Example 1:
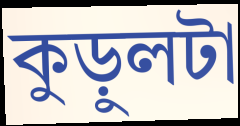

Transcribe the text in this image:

কুড়ুলটা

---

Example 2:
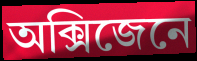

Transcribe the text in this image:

অক্সিজেনে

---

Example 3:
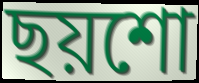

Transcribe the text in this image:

ছয়শো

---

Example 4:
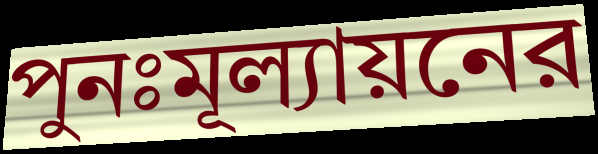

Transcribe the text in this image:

পুনঃমূল্যায়নের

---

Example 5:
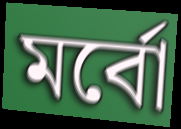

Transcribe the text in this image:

মর্বো